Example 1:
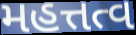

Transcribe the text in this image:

મહત્તત્વ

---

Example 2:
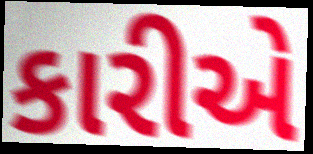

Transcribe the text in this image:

કારીએ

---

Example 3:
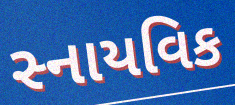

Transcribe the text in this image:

સ્નાયવિક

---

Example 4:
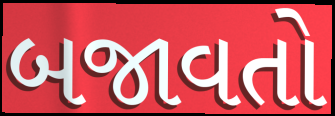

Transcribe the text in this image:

બજાવતો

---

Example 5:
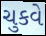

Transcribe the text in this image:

ચુકવે